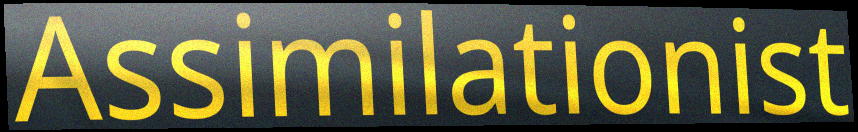
Assimilationist